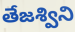
తేజశ్విని